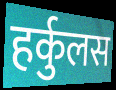
हर्कुलस